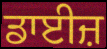
ਡਾਈਜ਼